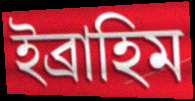
ইব্রাহিম